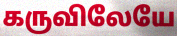
கருவிலேயே